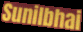
Sunilbhai